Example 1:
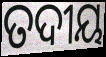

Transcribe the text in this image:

ତଦୀୟ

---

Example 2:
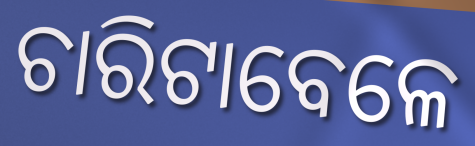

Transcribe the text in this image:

ଚାରିଟାବେଳେ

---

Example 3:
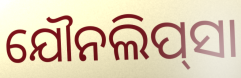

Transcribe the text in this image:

ଯୌନଲିପ୍‌ସା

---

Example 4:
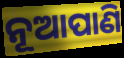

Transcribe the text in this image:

ନୂଆପାଣି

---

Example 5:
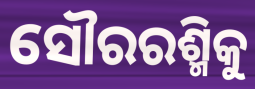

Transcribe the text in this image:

ସୌରରଶ୍ମିକୁ